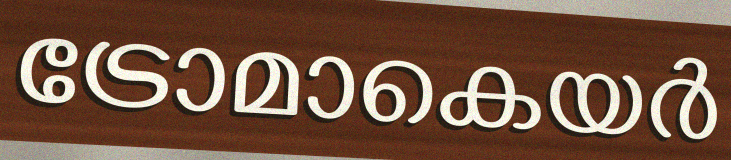
ട്രോമാകെയർ